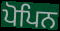
ਪੋਪਿਨ